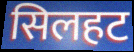
सिलहट